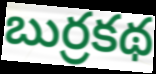
బుర్రకథ